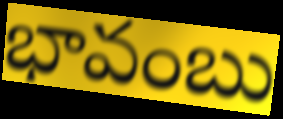
భావంబు